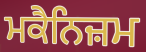
ਮਕੈਨਿਜ਼ਮ